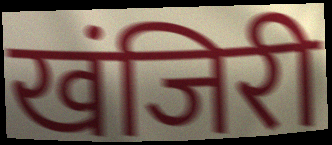
खंजिरी